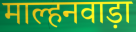
माल्हनवाड़ा